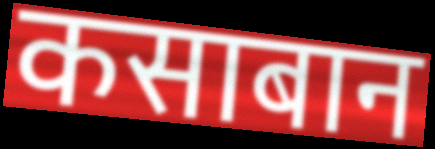
कसाबान